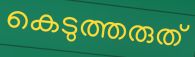
കെടുത്തരുത്